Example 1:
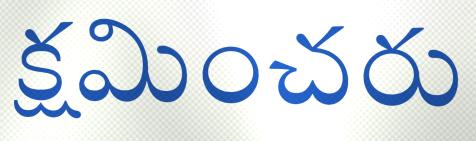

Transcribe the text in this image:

క్షమించరు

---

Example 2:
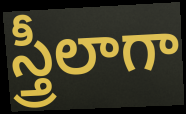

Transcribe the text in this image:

స్త్రీలాగా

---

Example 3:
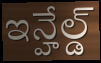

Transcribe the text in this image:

ఇన్హేల్డ్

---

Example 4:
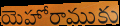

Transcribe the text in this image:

యెహోరాముకు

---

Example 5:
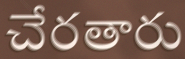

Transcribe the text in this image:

చేరతారు